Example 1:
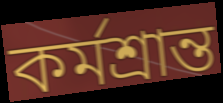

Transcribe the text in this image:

কর্মশ্রান্ত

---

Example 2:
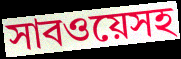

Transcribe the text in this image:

সাবওয়েসহ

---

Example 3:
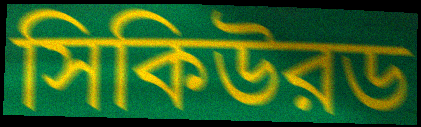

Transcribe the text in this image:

সিকিউরড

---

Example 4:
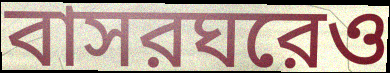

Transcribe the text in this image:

বাসরঘরেও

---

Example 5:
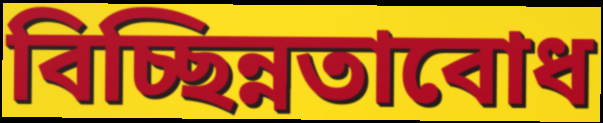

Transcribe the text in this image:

বিচ্ছিন্নতাবোধ